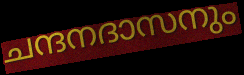
ചന്ദനദാസനും